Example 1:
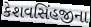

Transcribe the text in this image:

કેશવસિંહજીના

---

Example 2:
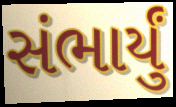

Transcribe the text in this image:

સંભાર્યું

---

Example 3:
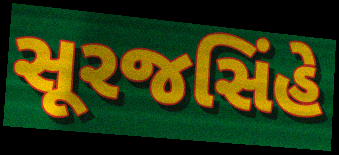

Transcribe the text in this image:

સૂરજસિંહે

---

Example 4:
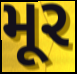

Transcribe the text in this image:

મૂર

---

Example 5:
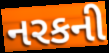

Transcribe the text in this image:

નરકની